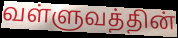
வள்ளுவத்தின்